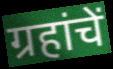
ग्रहांचें